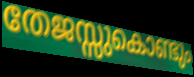
തേജസ്സുകൊണ്ടും